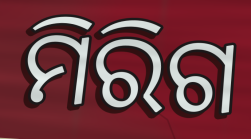
ମିରିଗ